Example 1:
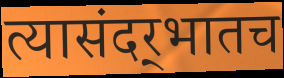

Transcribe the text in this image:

त्यासंदर्भातच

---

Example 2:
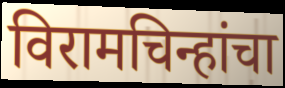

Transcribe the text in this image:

विरामचिन्हांचा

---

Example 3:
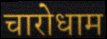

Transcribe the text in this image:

चारोधाम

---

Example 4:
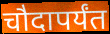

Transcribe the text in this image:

चौदापर्यंत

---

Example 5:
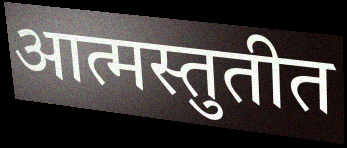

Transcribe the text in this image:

आत्मस्तुतीत